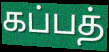
கப்பத்